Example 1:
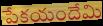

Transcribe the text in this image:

పేకయందేమి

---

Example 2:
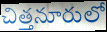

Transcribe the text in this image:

చిత్తనూరులో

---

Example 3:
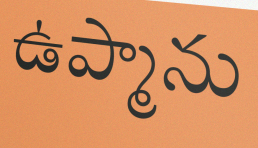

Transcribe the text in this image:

ఉప్మాను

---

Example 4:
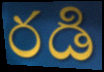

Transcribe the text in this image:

రడి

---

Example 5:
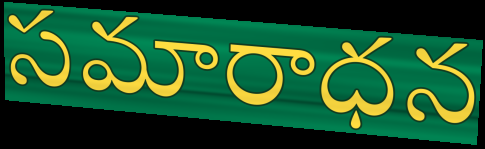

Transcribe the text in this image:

సమారాధన